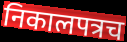
निकालपत्रच